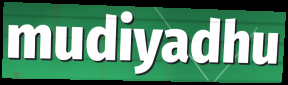
mudiyadhu